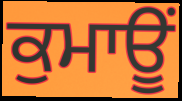
ਕੁਮਾਊਂ